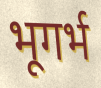
भूगर्भ